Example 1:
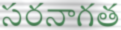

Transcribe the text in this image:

సరనాగత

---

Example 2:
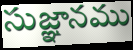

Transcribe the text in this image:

సుజ్ఞానము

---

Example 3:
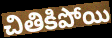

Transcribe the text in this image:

చితికిపోయి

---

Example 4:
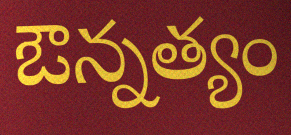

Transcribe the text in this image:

ఔన్నత్యం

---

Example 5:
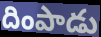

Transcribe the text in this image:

దింపాడు